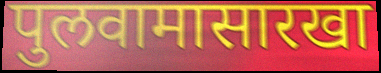
पुलवामासारखा